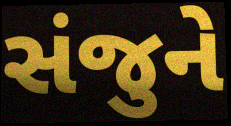
સંજુને